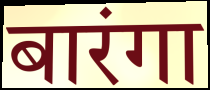
बारंगा